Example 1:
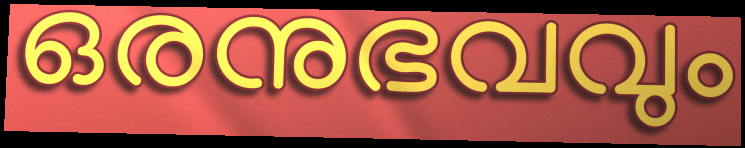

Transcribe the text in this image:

ഒരനുഭവവും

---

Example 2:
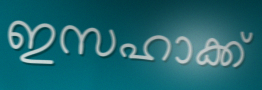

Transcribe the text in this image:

ഇസഹാക്ക്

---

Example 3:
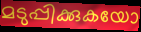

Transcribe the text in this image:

മടുപ്പിക്കുകയോ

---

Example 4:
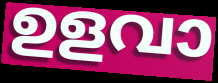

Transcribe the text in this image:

ഉളവാ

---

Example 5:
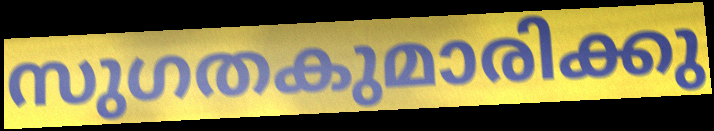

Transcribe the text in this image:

സുഗതകുമാരിക്കു